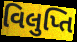
વિલુપ્તિ